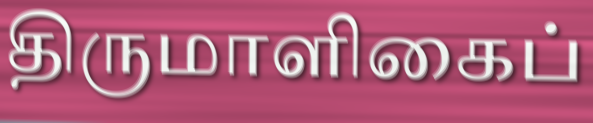
திருமாளிகைப்